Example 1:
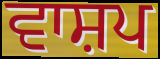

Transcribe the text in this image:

ਵਾਸ਼ਪ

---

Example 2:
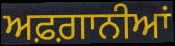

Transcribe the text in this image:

ਅਫ਼ਗ਼ਾਨੀਆਂ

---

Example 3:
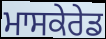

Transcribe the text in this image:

ਮਾਸਕੇਰੇਡ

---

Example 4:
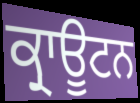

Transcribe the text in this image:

ਕ੍ਰਾਊਟਨ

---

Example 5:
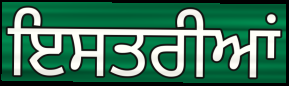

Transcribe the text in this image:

ਇਸਤਰੀਆਂ